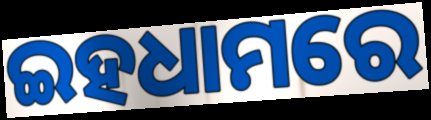
ଇହଧାମରେ